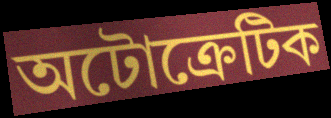
অটোক্রেটিক